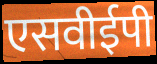
एसवीईपी